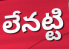
లేనట్టి